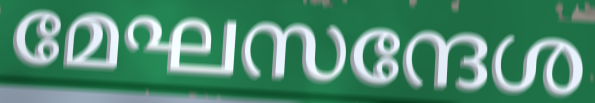
മേഘസന്ദേശ